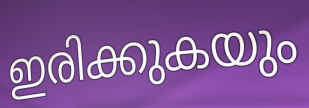
ഇരിക്കുകയും